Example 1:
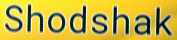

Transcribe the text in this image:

Shodshak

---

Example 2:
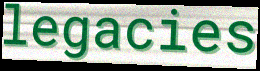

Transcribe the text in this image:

legacies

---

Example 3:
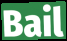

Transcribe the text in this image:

Bail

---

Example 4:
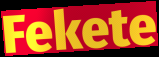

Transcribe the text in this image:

Fekete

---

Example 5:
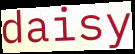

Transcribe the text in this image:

daisy